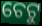
ଚେଟୁ